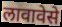
लावावेसे